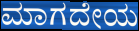
ಮಾಗದೇಯ